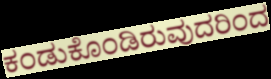
ಕಂಡುಕೊಂಡಿರುವುದರಿಂದ